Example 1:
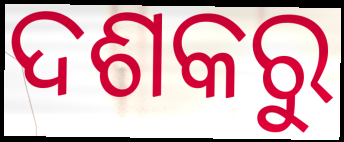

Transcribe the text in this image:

ଦଶକରୁ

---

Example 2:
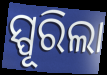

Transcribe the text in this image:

ସ୍ପୂରିଲା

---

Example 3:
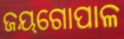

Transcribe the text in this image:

ଜୟଗୋପାଳ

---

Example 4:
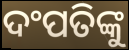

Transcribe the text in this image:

ଦଂପତିଙ୍କୁ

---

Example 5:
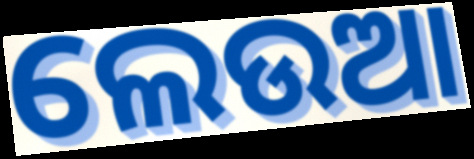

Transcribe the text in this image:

ଲେଉଆ